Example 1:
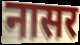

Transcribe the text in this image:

नासर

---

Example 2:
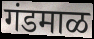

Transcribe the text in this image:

गंडमाळ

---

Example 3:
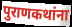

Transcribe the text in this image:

पुराणकथांना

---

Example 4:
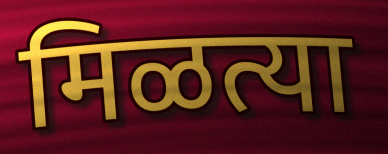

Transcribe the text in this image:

मिळत्या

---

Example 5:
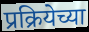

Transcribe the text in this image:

प्रक्रियेच्या